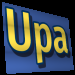
Upa